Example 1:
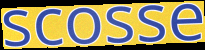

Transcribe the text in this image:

scosse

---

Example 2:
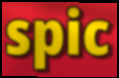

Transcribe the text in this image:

spic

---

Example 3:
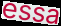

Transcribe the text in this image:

essa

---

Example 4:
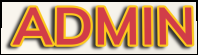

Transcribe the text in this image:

ADMIN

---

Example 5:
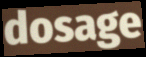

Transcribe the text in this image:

dosage